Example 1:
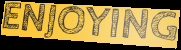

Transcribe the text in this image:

ENJOYING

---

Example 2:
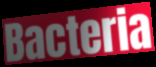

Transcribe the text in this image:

Bacteria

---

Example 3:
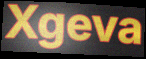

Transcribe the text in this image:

Xgeva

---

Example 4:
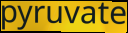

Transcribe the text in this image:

pyruvate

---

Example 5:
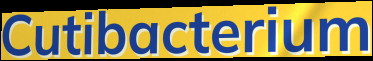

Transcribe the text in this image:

Cutibacterium